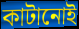
কাটানোই